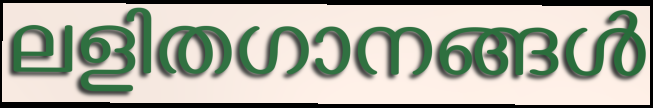
ലളിതഗാനങ്ങൾ